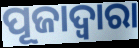
ପୂଜାଦ୍ୱାରା